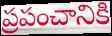
ప్రపంచానికి